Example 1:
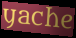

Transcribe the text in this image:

yache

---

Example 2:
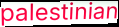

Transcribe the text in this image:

palestinian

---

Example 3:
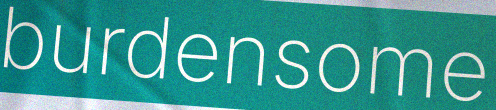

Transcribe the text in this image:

burdensome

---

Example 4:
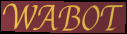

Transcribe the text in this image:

WABOT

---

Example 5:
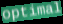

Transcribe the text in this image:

optimal